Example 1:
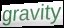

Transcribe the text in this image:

gravity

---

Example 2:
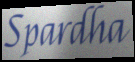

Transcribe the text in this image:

Spardha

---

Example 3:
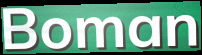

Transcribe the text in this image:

Boman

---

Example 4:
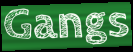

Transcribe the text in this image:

Gangs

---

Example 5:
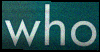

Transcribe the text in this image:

who